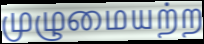
முழுமையற்ற